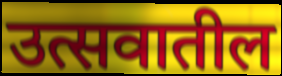
उत्सवातील